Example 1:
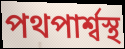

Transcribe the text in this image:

পথপার্শ্বস্থ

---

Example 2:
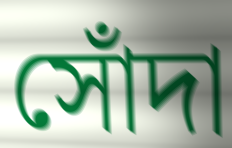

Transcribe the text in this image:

সোঁদা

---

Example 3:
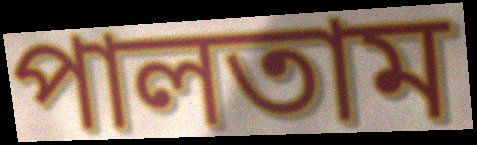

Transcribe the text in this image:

পালতাম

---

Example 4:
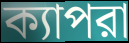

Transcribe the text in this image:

ক্যাপরা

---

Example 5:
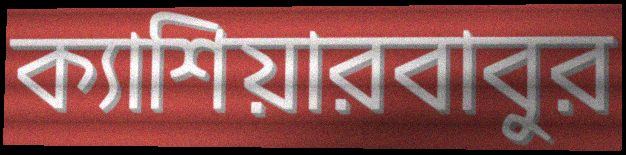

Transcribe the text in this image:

ক্যাশিয়ারবাবুর